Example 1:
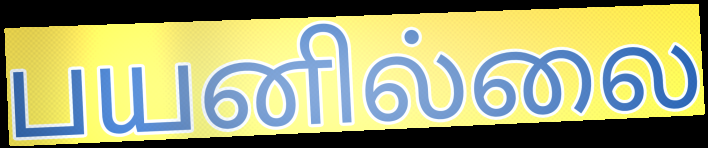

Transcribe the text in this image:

பயனில்லை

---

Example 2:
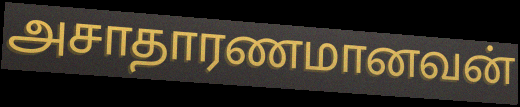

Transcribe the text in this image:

அசாதாரணமானவன்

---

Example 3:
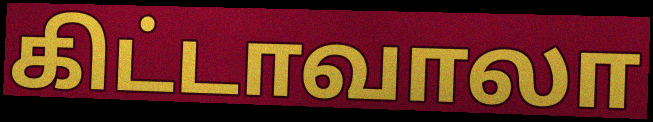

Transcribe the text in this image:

கிட்டாவாலா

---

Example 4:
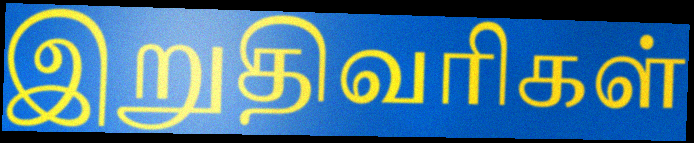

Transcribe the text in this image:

இறுதிவரிகள்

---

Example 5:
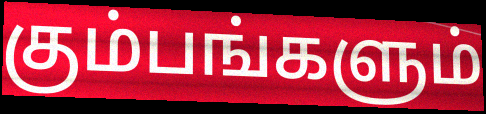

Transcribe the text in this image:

கும்பங்களும்